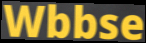
Wbbse